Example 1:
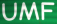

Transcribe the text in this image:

UMF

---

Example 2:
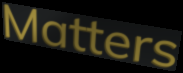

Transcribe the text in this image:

Matters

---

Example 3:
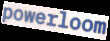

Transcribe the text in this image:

powerloom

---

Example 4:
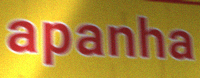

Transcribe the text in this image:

apanha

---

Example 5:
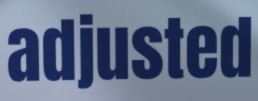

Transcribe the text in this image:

adjusted